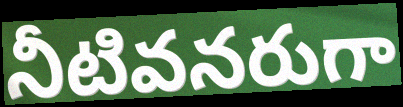
నీటివనరుగా